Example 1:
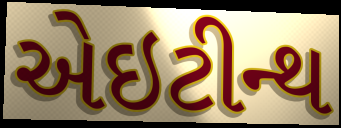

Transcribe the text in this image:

એઇટીન્થ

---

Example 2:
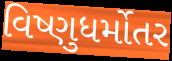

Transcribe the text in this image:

વિષ્ણુધર્મોતર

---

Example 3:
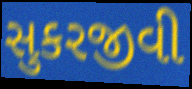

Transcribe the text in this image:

સુકરજીવી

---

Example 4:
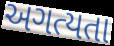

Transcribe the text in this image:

અગત્યતા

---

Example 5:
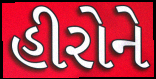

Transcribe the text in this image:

હીરોને